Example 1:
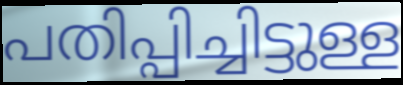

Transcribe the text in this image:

പതിപ്പിച്ചിട്ടുള്ള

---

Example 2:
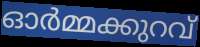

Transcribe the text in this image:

ഓർമ്മക്കുറവ്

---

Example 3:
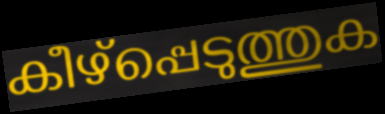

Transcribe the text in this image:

കീഴ്പ്പെടുത്തുക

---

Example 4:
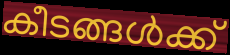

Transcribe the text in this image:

കീടങ്ങൾക്ക്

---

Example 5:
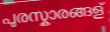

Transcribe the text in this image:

പുരസ്കാരങ്ങള്